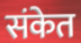
संकेत